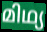
മിഥ്യ